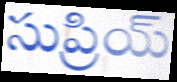
సుప్రియ్